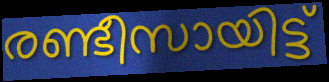
രണ്ടീസായിട്ട്